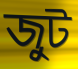
জুট